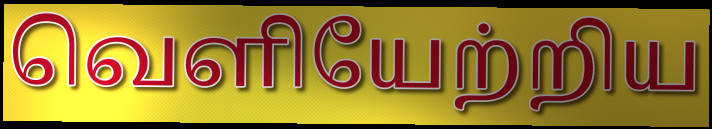
வெளியேற்றிய